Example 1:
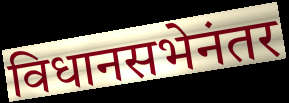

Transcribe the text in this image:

विधानसभेनंतर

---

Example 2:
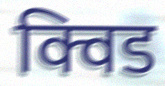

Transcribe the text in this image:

क्विड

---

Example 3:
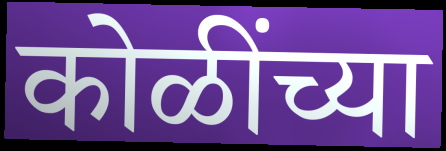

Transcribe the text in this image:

कोळींच्या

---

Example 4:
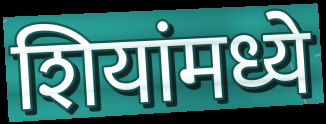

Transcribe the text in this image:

शियांमध्ये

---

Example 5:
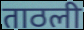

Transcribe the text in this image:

ताठली